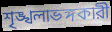
শৃঙ্খলাভঙ্গকারী